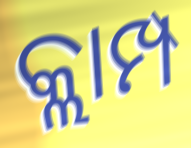
କ୍ଲାମ୍ପ